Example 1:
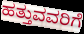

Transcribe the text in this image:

ಹತ್ತುವವರಿಗೆ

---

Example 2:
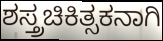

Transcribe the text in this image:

ಶಸ್ತ್ರಚಿಕಿತ್ಸಕನಾಗಿ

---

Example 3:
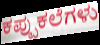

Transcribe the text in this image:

ಕಪ್ಪುಕಲೆಗಳು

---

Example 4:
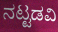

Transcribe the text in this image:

ನಟ್ಟಡವಿ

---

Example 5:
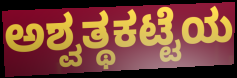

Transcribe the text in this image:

ಅಶ್ವತ್ಥಕಟ್ಟೆಯ